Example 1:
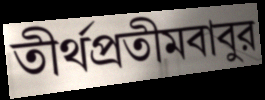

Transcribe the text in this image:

তীর্থপ্রতীমবাবুর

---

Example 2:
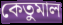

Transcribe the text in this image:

কেতুমাল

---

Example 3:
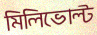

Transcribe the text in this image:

মিলিভোল্ট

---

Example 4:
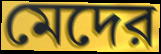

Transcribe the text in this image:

মেদের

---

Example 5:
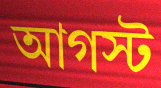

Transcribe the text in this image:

আগস্ট